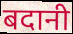
बदानी